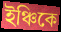
ইঞ্চিকে